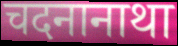
चदनानाथा